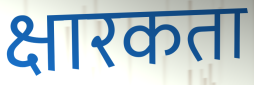
क्षारकता